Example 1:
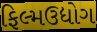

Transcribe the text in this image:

ફિલ્મઉદ્યોગ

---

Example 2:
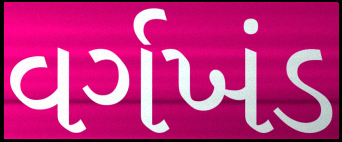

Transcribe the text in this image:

વર્ગખંડ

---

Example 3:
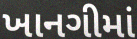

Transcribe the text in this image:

ખાનગીમાં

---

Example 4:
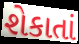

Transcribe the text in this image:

શેકાતાં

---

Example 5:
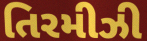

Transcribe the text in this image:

તિરમીઝી